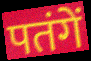
पतंगें